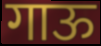
गाऊ